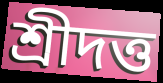
শ্রীদত্ত